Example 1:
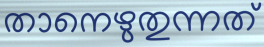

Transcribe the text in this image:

താനെഴുതുന്നത്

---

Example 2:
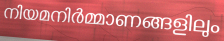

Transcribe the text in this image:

നിയമനിർമ്മാണങ്ങളിലും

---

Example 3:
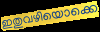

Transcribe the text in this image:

ഇതുവഴിയൊക്കെ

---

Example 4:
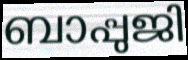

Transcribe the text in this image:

ബാപ്പുജി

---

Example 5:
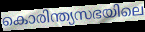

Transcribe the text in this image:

കൊരിന്ത്യസഭയിലെ